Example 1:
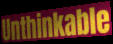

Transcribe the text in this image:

Unthinkable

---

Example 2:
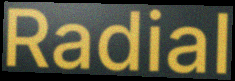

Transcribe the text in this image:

Radial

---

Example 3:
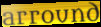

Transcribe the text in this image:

arround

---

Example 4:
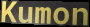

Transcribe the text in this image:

Kumon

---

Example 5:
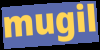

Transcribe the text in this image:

mugil